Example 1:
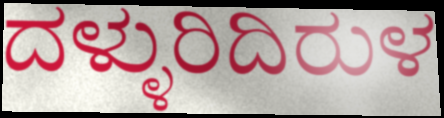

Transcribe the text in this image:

ದಳ್ಳುರಿದಿರುಳ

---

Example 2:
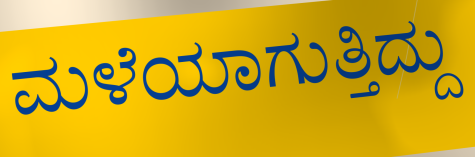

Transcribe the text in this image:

ಮಳೆಯಾಗುತ್ತಿದ್ದು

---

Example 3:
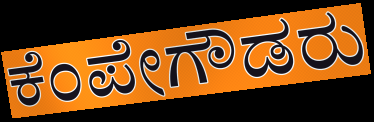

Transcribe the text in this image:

ಕೆಂಪೇಗೌಡರು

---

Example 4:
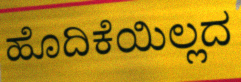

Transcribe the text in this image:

ಹೊದಿಕೆಯಿಲ್ಲದ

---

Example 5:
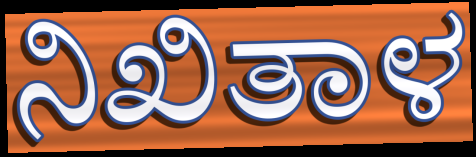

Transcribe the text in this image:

ನಿಖಿತಾಳ